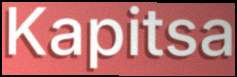
Kapitsa